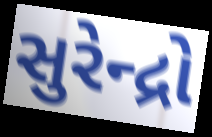
સુરેન્દ્રો